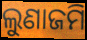
ଲୁଣାଜମି